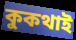
কুকথাই